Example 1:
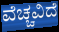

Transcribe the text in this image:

ವೆಚ್ಚವಿದೆ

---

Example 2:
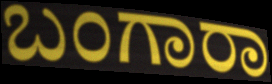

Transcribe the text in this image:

ಬಂಗಾರಾ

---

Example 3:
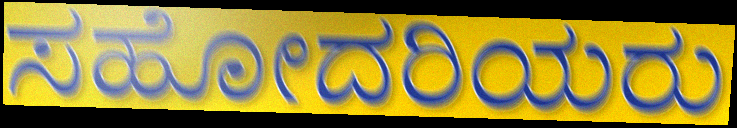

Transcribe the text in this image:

ಸಹೋದರಿಯರು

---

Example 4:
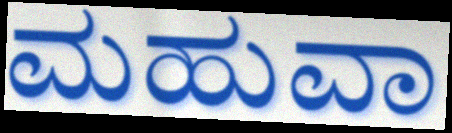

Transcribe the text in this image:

ಮಹುವಾ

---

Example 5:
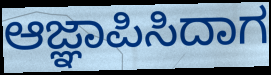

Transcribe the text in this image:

ಆಜ್ಞಾಪಿಸಿದಾಗ